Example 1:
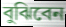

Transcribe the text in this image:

বুঝিবেন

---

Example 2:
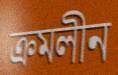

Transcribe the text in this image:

ক্রমলীন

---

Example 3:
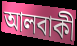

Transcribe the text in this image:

আলবাকী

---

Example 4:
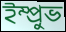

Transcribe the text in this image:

ইম্প্রুভ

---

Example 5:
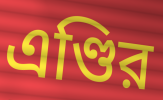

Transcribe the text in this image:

এণ্ডির